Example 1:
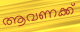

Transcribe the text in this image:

ആവണക്ക്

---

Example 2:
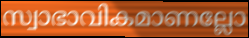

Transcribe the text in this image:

സ്വാഭാവികമാണല്ലോ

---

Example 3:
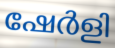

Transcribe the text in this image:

ഷേർളി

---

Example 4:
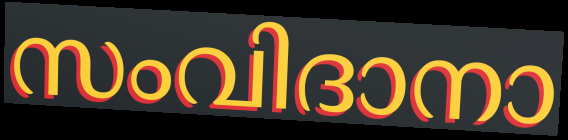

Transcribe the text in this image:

സംവിദാനാ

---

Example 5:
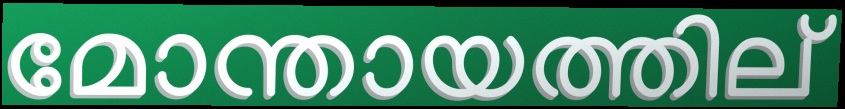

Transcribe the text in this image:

മോന്തായത്തില്